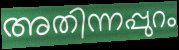
അതിന്നപ്പുറം